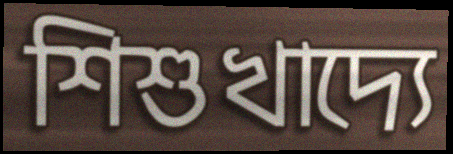
শিশুখাদ্যে